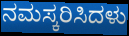
ನಮಸ್ಕರಿಸಿದಳು